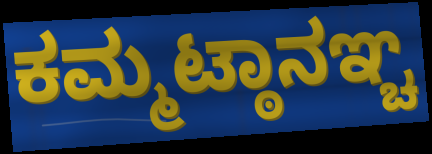
ಕಮ್ಮಟ್ಠಾನಞ್ಚ